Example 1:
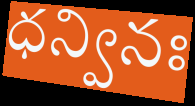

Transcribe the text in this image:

ధన్వినః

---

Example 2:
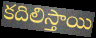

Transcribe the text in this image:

కదిలిస్తాయి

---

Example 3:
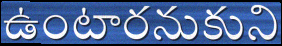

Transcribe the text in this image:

ఉంటారనుకుని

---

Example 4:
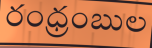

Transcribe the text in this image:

రంధ్రంబుల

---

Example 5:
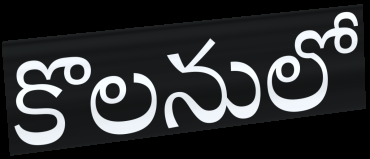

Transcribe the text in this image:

కొలనులో